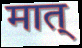
मात्